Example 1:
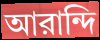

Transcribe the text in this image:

আরান্দি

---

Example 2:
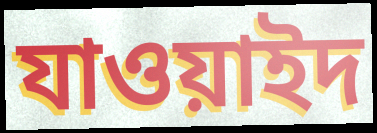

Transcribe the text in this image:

যাওয়াইদ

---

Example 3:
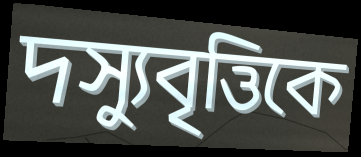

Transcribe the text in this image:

দস্যুবৃত্তিকে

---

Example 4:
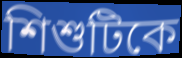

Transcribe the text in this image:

শিশুটিকে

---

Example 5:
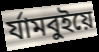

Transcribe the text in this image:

র্যামবুইয়ে